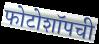
फोटोशॉपची